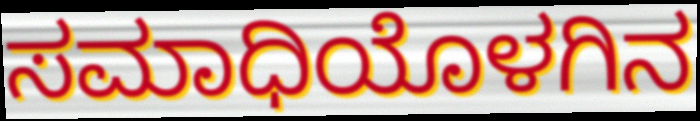
ಸಮಾಧಿಯೊಳಗಿನ